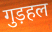
गुड़हल